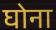
घोना